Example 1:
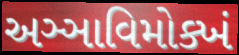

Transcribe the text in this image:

અઞ્ઞાવિમોક્ખં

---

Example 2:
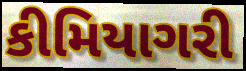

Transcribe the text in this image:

કીમિયાગરી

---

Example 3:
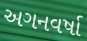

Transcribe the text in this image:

અગનવર્ષા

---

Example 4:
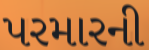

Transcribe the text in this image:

પરમારની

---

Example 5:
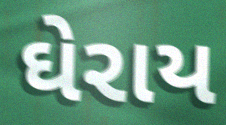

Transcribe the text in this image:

ઘેરાય